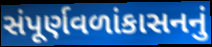
સંપૂર્ણવળાંકાસનનું